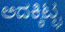
ಅದಕ್ಕಿಟ್ಟ